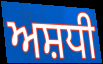
ਅਸ਼ਧੀ